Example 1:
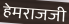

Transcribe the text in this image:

हेमराजजी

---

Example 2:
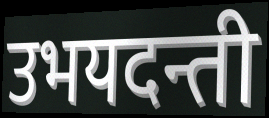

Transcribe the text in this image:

उभयदन्ती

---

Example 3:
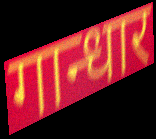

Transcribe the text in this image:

गान्धार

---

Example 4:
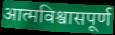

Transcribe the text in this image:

आत्मविश्वासपूर्ण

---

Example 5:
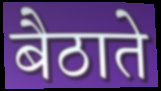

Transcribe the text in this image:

बैठाते